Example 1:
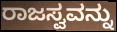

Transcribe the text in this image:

ರಾಜಸ್ವವನ್ನು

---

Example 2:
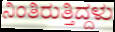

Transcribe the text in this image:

ನಿಂತಿರುತ್ತಿದ್ದಳು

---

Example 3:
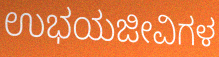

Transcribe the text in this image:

ಉಭಯಜೀವಿಗಳ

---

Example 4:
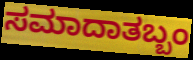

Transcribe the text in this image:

ಸಮಾದಾತಬ್ಬಂ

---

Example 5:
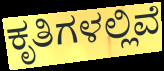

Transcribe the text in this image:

ಕೃತಿಗಳಲ್ಲಿವೆ